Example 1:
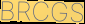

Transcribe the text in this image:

BRCGS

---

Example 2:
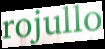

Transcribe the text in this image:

rojullo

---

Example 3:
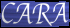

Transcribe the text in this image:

CARA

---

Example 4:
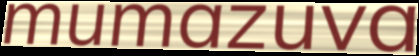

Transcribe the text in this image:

mumazuva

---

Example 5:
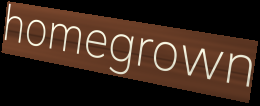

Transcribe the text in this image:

homegrown